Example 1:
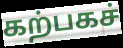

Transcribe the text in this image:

கற்பகச்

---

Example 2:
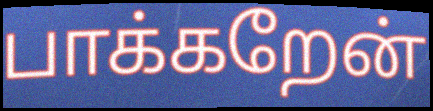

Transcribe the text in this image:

பாக்கறேன்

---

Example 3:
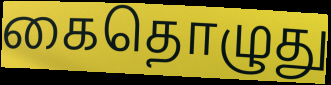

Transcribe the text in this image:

கைதொழுது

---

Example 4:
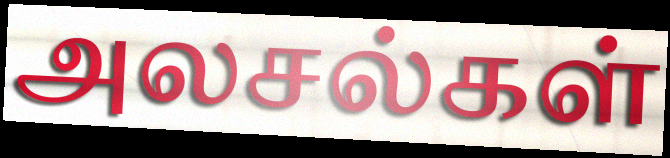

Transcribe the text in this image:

அலசல்கள்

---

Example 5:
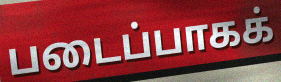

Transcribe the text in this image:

படைப்பாகக்